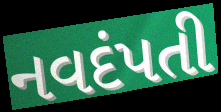
નવદંપતી